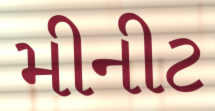
મીનીટ